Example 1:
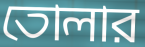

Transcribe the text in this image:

তোলার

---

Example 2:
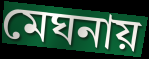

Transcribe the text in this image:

মেঘনায়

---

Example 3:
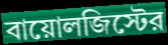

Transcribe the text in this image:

বায়োলজিস্টের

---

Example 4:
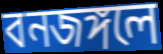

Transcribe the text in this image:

বনজঙ্গলে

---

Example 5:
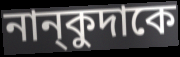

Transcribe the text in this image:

নান্‌কুদাকে